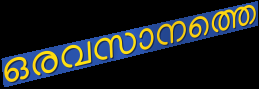
ഒരവസാനത്തെ